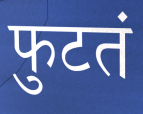
फुटतं